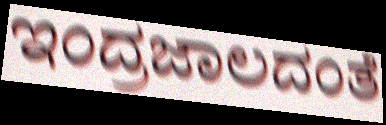
ಇಂದ್ರಜಾಲದಂತೆ